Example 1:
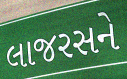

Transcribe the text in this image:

લાજરસને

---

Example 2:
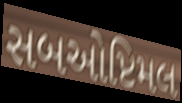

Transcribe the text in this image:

સબઓપ્ટિમલ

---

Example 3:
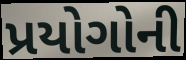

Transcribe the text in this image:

પ્રયોગોની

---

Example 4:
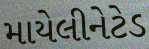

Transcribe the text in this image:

માયેલીનેટેડ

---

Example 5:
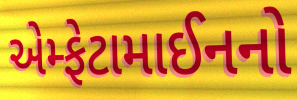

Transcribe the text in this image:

એમ્ફેટામાઈનનો